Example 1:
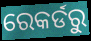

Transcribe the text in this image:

ରେକର୍ଡରୁ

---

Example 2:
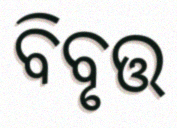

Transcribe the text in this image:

ବିବୃତ୍ତ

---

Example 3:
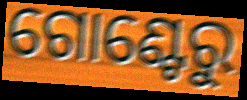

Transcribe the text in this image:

ଗୋଣ୍ଟେରୁ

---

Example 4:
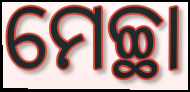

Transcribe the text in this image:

ମେଚ୍ଛା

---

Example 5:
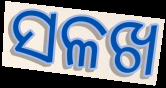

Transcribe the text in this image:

ସଳଖ